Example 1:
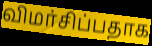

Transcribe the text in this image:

விமர்சிப்பதாக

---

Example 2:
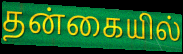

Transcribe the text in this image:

தன்கையில்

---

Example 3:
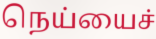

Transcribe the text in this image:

நெய்யைச்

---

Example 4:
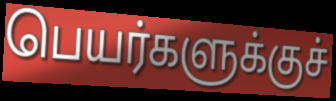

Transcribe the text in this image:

பெயர்களுக்குச்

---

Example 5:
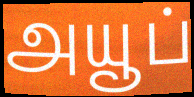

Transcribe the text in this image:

அயூப்